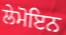
ਲੇਮੋਇਨ